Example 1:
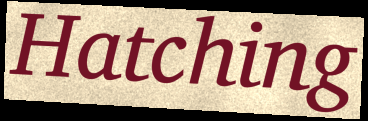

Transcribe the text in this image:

Hatching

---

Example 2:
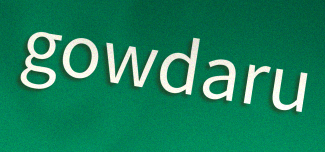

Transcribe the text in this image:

gowdaru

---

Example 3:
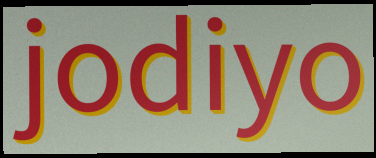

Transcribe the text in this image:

jodiyo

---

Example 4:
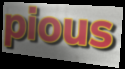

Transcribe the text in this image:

pious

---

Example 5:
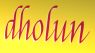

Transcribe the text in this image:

dholun